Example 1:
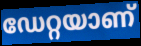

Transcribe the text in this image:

ഡേറ്റയാണ്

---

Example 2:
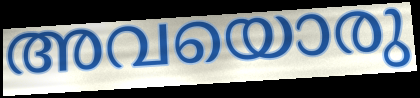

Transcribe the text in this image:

അവയൊരു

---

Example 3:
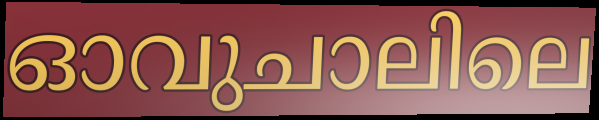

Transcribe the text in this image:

ഓവുചാലിലെ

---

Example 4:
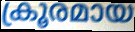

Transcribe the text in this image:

ക്രൂരമായ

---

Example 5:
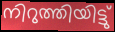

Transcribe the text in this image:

നിറുത്തിയിട്ടു്